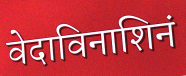
वेदाविनाशिनं